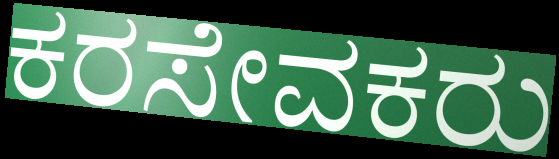
ಕರಸೇವಕರು